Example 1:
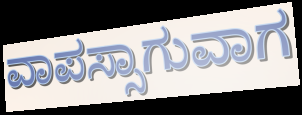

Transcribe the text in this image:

ವಾಪಸ್ಸಾಗುವಾಗ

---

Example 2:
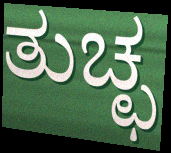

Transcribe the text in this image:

ತುಚ್ಛ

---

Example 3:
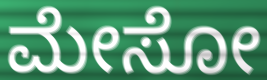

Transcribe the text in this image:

ಮೇಸೋ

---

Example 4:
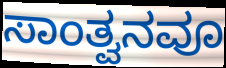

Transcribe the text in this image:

ಸಾಂತ್ವನವೂ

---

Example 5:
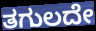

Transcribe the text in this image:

ತಗುಲದೇ